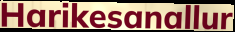
Harikesanallur